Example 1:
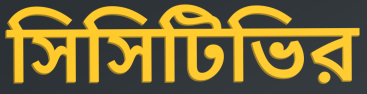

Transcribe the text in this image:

সিসিটিভির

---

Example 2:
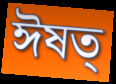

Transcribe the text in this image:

ঈষত্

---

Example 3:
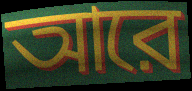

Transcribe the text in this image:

আরে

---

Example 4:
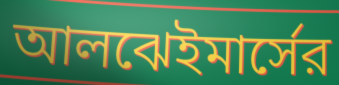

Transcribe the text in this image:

আলঝেইমার্সের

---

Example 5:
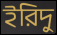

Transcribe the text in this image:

ইরিদু